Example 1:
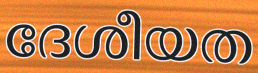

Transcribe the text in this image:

ദേശീയത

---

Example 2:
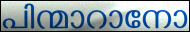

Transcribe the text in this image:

പിന്മാറാനോ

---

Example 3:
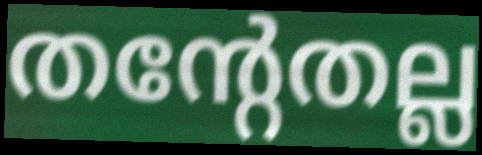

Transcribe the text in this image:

തന്റേതല്ല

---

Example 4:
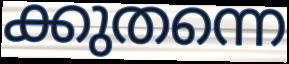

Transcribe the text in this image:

ക്കുതന്നെ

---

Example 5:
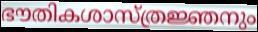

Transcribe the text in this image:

ഭൗതികശാസ്ത്രജ്ഞനും